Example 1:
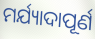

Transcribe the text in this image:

ମର୍ଯ୍ୟାଦାପୂର୍ଣ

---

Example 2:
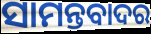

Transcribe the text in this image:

ସାମନ୍ତବାଦର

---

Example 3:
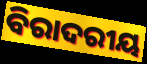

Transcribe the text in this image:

ବିରାଦରୀୟ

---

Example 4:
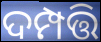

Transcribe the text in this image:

ଦମ୍ପତ୍ତି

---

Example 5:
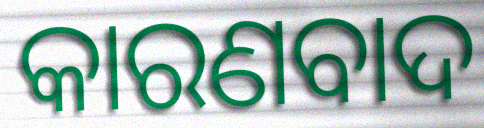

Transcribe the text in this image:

କାରଣବାଦ